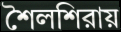
শৈলশিরায়